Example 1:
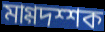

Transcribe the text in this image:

মাগ্গদশ্শক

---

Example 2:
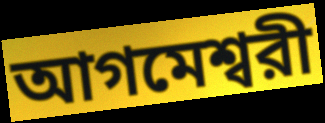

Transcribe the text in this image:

আগমেশ্বরী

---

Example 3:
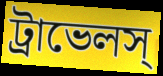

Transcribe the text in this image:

ট্রাভেলস্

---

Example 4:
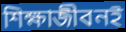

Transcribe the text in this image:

শিক্ষাজীবনই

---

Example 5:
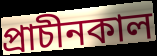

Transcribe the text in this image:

প্রাচীনকাল